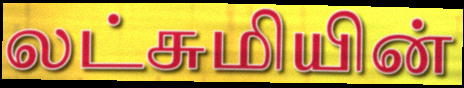
லட்சுமியின்